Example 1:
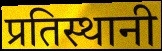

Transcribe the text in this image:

प्रतिस्थानी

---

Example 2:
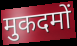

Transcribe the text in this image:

मुकदमों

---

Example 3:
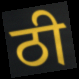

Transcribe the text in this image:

ठी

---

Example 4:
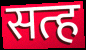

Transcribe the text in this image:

सत्ह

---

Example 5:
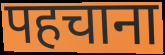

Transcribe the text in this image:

पहचाना